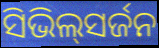
ସିଭିଲ୍‌ସର୍ଜନ